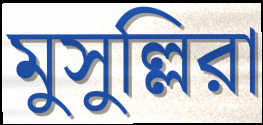
মুসুল্লিরা